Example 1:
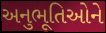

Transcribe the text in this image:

અનુભૂતિઓને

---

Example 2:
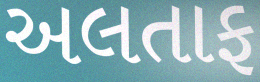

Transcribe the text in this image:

અલતાફ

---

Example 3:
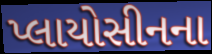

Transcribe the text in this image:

પ્લાયોસીનના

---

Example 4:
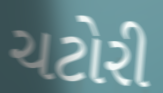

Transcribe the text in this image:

ચટોરી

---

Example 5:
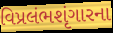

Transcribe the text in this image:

વિપ્રલંભશૃંગારના